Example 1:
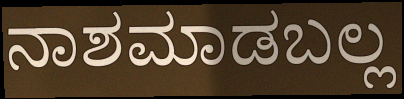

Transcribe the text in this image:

ನಾಶಮಾಡಬಲ್ಲ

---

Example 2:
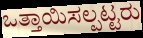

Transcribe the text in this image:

ಒತ್ತಾಯಿಸಲ್ಪಟ್ಟರು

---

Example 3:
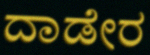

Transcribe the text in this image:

ದಾಡೇರ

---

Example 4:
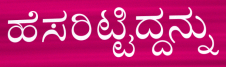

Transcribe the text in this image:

ಹೆಸರಿಟ್ಟಿದ್ದನ್ನು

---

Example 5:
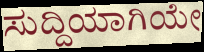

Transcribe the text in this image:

ಸುದ್ದಿಯಾಗಿಯೇ